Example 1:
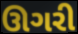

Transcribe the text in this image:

ઊગરી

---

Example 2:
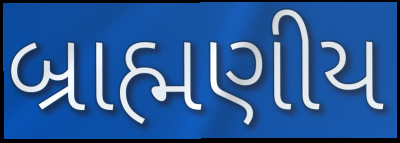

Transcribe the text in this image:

બ્રાહ્મણીય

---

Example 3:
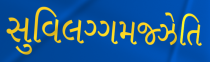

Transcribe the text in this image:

સુવિલગ્ગમજ્ઝેતિ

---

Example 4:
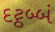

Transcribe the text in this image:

દટ્ઠબ્બં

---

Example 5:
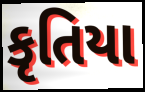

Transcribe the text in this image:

કૃતિયા